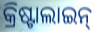
କ୍ରିଷ୍ଟାଲାଇନ୍